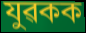
যুৱকক